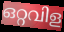
ഒറ്റവിള